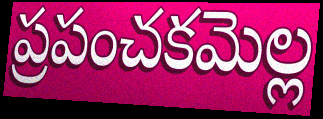
ప్రపంచకమెల్ల